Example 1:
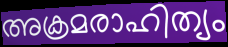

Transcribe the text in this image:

അക്രമരാഹിത്യം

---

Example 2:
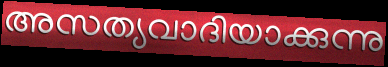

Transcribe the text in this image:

അസത്യവാദിയാക്കുന്നു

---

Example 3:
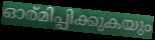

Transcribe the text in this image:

ഓര്മിപ്പിക്കുകയും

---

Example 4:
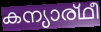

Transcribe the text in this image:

കന്യാര്ഥീ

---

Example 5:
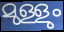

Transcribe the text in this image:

മുള്ളും